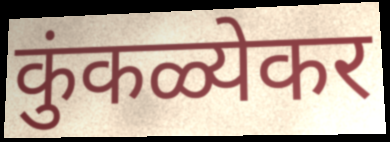
कुंकळ्येकर